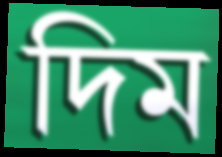
দিম